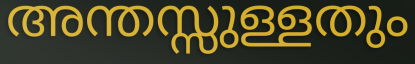
അന്തസ്സുള്ളതും